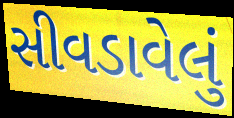
સીવડાવેલું